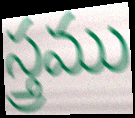
స్త్రము